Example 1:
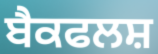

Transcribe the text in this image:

ਬੈਕਫਲਸ਼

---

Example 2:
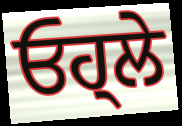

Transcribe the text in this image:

ਓਹ੍ਲੇ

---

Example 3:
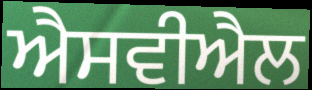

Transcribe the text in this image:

ਐਸਵੀਐਲ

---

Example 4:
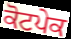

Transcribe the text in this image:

ਕੋਟਪੇਕ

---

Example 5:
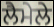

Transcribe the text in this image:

ਲੈਮੇਲੇ